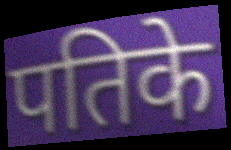
पतिके